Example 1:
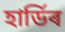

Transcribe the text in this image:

হাৰ্ডিৰ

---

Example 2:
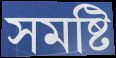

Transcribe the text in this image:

সমষ্টি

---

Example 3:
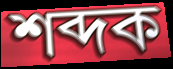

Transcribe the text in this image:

শব্দক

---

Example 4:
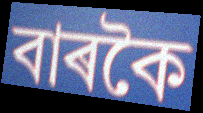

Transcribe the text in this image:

বাৰকৈ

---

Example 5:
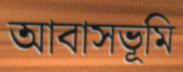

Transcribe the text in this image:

আবাসভূমি